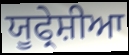
ਯੂਫ੍ਰੇਸ਼ੀਆ